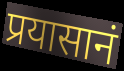
प्रयासानं